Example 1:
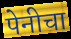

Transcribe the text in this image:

पेनीचा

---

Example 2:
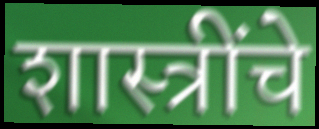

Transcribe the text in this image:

शास्त्रींचे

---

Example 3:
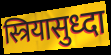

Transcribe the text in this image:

स्त्रियासुध्दा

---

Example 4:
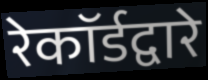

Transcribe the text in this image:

रेकॉर्डद्वारे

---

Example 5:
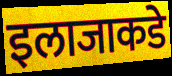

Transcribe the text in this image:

इलाजाकडे